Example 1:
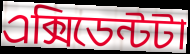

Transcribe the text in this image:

এক্সিডেন্টটা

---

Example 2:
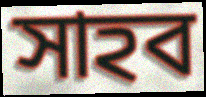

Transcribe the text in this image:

সাহব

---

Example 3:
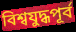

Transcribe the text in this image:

বিশ্বযুদ্ধপূর্ব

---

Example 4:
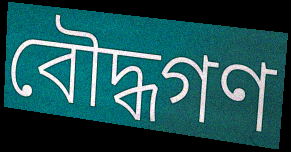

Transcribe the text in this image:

বৌদ্ধগণ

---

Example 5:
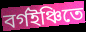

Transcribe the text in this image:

বর্গইঞ্চিতে